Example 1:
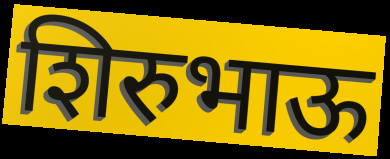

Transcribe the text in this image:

शिरुभाऊ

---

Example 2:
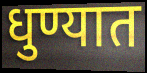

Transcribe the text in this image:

धुण्यात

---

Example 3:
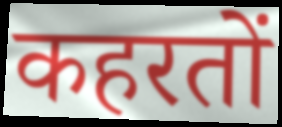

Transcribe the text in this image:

कहरतों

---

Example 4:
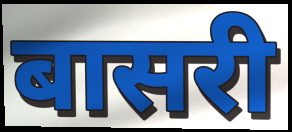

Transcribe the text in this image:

बासरी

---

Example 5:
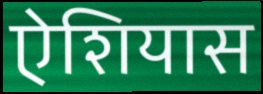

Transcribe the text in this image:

ऐशियास